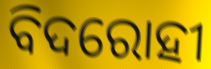
ବିଦରୋହୀ